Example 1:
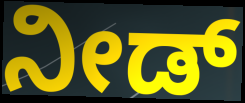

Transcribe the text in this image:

ನೀಡ್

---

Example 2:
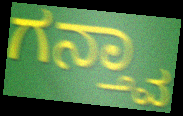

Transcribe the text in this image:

ಗನ್ತ್ವಾ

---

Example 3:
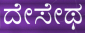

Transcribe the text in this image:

ದೇಸೇಥ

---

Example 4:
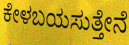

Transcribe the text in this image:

ಕೇಳಬಯಸುತ್ತೇನೆ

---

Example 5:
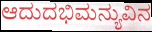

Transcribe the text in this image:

ಆದುದಭಿಮನ್ಯುವಿನ